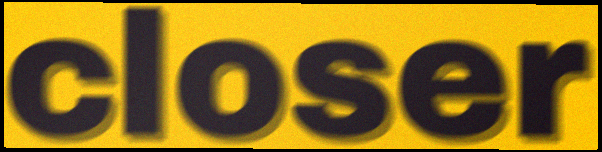
closer